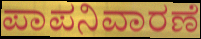
ಪಾಪನಿವಾರಣೆ